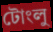
টোংলু